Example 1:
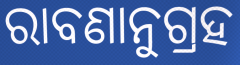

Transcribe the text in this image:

ରାବଣାନୁଗ୍ରହ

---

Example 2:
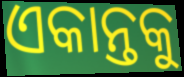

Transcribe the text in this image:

ଏକାନ୍ତକୁ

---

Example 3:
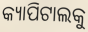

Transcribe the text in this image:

କ୍ୟାପିଟାଲକୁ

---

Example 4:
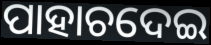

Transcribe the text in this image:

ପାହାଚଦେଇ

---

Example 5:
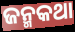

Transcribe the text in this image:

ଜନ୍ମକଥା